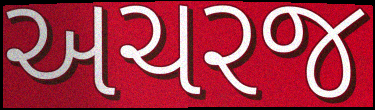
અચરજ